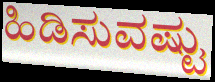
ಹಿಡಿಸುವಷ್ಟು